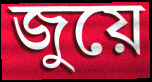
জুয়ে